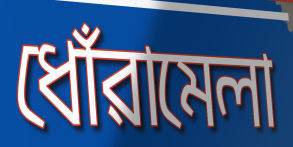
ধোঁৱামেলা